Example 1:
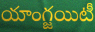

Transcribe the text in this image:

యాంగ్జయిటీ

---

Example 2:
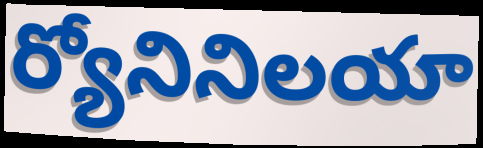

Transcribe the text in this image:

ర్యోనినిలయా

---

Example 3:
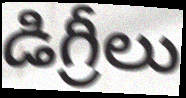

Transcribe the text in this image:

డిగ్రీలు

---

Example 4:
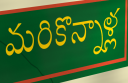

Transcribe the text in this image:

మరికొన్నాళ్ల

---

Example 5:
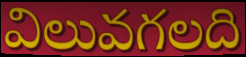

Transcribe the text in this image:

విలువగలది